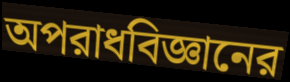
অপরাধবিজ্ঞানের